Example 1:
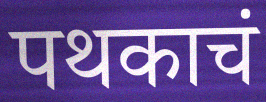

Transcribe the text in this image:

पथकाचं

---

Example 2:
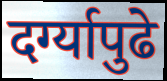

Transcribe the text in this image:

दर्ग्यापुढे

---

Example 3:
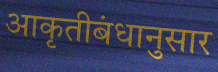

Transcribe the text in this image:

आकृतीबंधानुसार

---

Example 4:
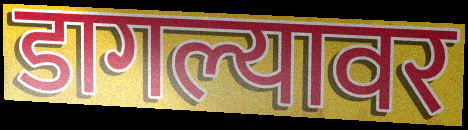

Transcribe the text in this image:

डागल्यावर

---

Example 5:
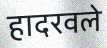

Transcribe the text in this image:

हादरवले